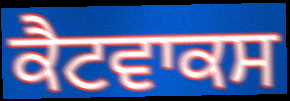
ਕੈਟਵਾਕਸ